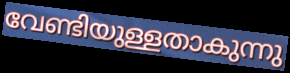
വേണ്ടിയുള്ളതാകുന്നു